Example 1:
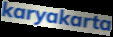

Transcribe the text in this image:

karyakarta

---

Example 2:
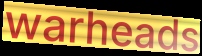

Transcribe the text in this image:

warheads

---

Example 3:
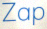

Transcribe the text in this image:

Zap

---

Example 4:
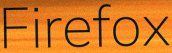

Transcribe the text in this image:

Firefox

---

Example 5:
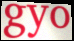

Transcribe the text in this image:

gyo